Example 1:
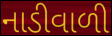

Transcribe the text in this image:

નાડીવાળી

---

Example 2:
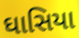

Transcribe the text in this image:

ઘાસિયા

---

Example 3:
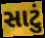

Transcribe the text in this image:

સાટું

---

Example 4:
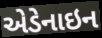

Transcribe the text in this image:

એડેનાઇન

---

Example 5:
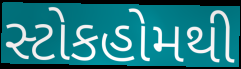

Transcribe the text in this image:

સ્ટોકહોમથી